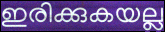
ഇരിക്കുകയല്ല